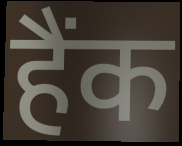
हैंक